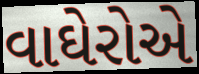
વાઘેરોએ